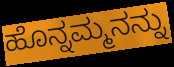
ಹೊನ್ನಮ್ಮನನ್ನು